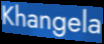
Khangela